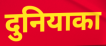
दुनियाका